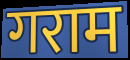
गराम